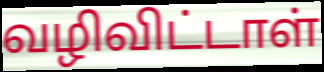
வழிவிட்டாள்